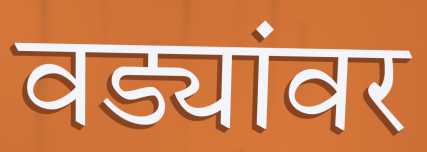
वड्यांवर